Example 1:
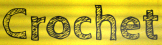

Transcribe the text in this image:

Crochet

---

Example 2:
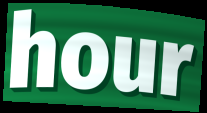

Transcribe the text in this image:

hour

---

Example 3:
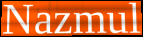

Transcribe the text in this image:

Nazmul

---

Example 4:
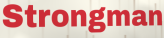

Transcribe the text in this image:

Strongman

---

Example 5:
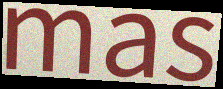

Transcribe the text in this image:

mas